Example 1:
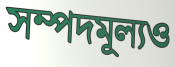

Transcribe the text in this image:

সম্পদমূল্যও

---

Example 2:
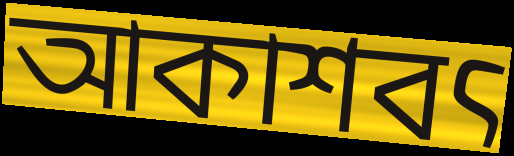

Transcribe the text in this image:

আকাশবৎ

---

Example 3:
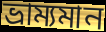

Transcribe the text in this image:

ভ্রাম্যমান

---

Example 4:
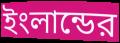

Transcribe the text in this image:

ইংলান্ডের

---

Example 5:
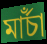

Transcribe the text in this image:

মার্চাঁ